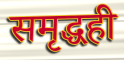
समृद्धही